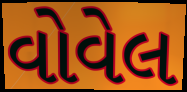
વોવેલ